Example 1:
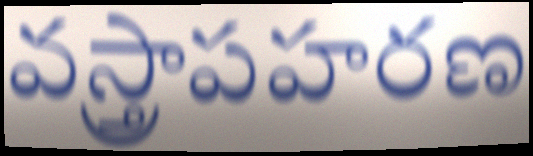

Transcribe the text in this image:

వస్త్రాపహరణ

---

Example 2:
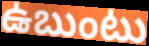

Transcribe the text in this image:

ఉబుంటు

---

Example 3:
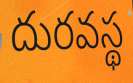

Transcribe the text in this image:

దురవస్థ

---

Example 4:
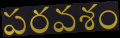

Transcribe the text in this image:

పరవశం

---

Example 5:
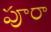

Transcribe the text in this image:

పూరా